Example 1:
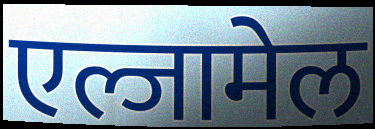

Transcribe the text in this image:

एल्जामेल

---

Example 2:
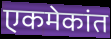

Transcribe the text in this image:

एकमेकांत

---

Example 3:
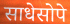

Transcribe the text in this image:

साधेसोपे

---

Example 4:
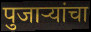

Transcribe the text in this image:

पुजाऱ्यांचा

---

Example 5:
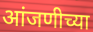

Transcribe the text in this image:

आंजणीच्या